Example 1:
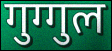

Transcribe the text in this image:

गुग्गुल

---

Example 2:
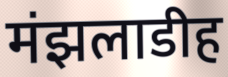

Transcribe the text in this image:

मंझलाडीह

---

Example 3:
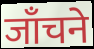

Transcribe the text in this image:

जाँचने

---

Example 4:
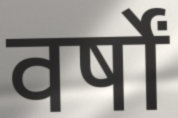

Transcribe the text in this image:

वर्षों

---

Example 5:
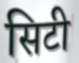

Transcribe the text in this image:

सिटी